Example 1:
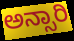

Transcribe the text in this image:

ಅನ್ಸಾರಿ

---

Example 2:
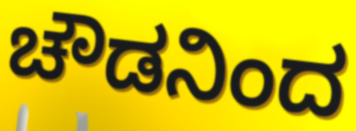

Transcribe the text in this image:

ಚೌಡನಿಂದ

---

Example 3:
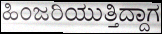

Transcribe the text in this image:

ಹಿಂಜರಿಯುತ್ತಿದ್ದಾಗ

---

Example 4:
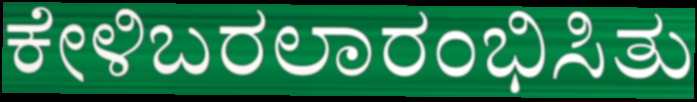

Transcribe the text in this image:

ಕೇಳಿಬರಲಾರಂಭಿಸಿತು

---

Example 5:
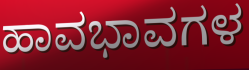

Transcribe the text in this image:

ಹಾವಭಾವಗಳ